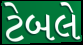
ટેબલે